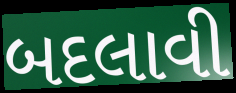
બદલાવી